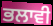
ਭਲਾਵੀ